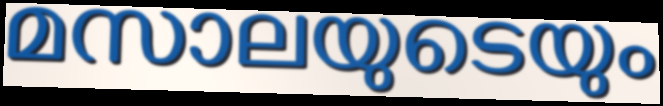
മസാലയുടെയും